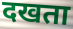
दखता